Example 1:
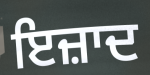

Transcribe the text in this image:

ਇਜ਼ਾਦ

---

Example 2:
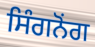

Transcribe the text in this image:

ਸਿੰਗਨੋਂਗ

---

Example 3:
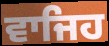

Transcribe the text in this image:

ਵਾਜਿਹ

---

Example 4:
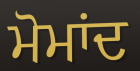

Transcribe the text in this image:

ਮੋਮਾਂਦ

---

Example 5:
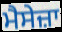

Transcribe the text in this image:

ਮੈਸੇਜ਼ਾ